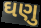
ઘણુ